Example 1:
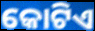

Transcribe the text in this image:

କୋଟିଏ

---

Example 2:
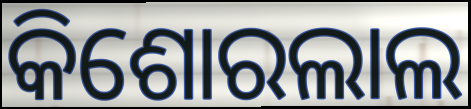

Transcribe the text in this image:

କିଶୋରଲାଲ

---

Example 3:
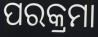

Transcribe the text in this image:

ପରକ୍ରମା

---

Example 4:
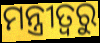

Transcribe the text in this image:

ମନ୍ତ୍ରୀତ୍ୱରୁ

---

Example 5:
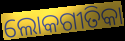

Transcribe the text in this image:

ଲୋକଗୀତିକା